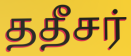
ததீசர்